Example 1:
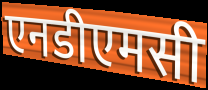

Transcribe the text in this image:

एनडीएमसी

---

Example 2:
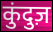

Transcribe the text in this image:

कुंदुज़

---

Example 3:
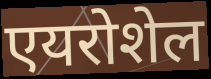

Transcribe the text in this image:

एयरोशेल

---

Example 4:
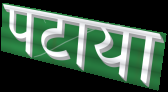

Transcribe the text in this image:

पटाया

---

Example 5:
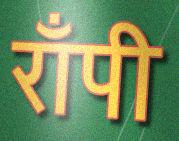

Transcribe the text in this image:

राँपी